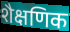
शैक्षणिक